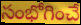
సంభోగించే